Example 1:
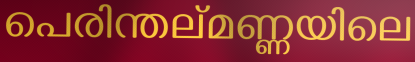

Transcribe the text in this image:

പെരിന്തല്മണ്ണയിലെ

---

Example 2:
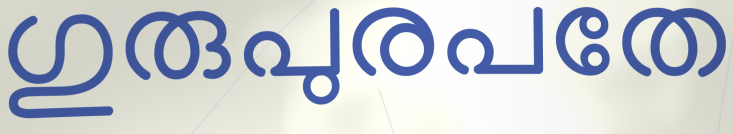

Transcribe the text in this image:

ഗുരുപുരപതേ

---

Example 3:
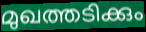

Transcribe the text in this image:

മുഖത്തടിക്കും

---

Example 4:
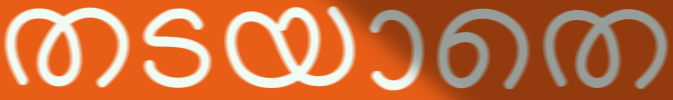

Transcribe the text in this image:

തടയാതെ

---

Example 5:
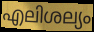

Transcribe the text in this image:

എലിശല്യം